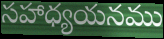
సహాధ్యయనము